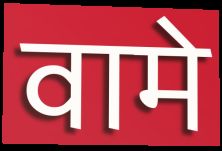
वामे